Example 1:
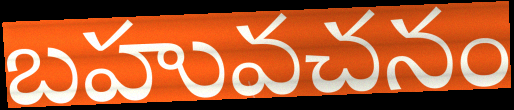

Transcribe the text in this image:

బహువచనం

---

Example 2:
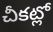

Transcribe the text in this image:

చీకట్లో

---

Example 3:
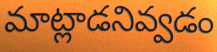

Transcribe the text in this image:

మాట్లాడనివ్వడం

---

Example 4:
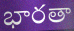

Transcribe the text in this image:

భారతా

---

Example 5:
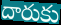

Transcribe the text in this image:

దారుకు